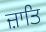
ਜ਼ਾਤਿ